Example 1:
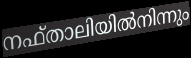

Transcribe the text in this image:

നഫ്താലിയിൽനിന്നും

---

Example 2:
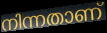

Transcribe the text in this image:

നിന്നതാണ്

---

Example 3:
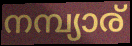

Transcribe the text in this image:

നമ്പ്യാര്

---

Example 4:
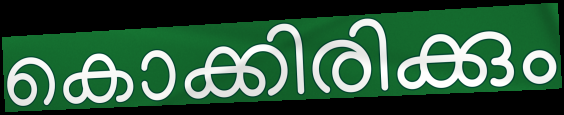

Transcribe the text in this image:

കൊക്കിരിക്കും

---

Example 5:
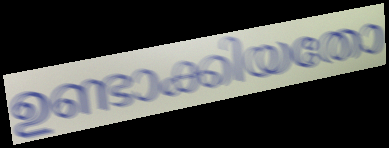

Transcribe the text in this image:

ഉണ്ടാക്കിയതോ